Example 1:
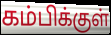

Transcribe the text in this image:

கம்பிக்குள்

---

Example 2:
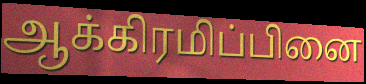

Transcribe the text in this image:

ஆக்கிரமிப்பினை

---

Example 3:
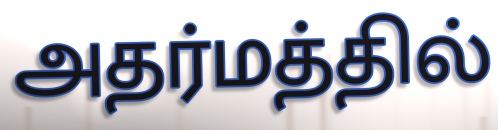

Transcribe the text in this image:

அதர்மத்தில்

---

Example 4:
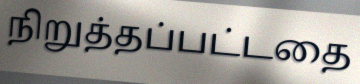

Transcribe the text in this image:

நிறுத்தப்பட்டதை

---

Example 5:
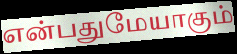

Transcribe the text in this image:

என்பதுமேயாகும்